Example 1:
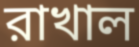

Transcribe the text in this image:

রাখাল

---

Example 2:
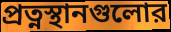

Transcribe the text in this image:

প্রত্নস্থানগুলোর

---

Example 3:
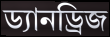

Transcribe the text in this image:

ড্যানড্রিজ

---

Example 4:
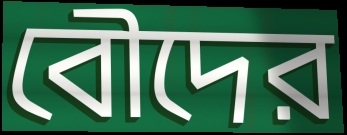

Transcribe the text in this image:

বৌদের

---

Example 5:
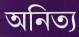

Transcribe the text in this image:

অনিত্য